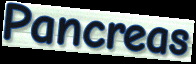
Pancreas